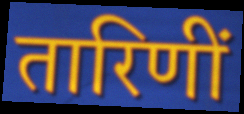
तारिणीं